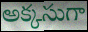
అక్కసుగా